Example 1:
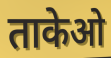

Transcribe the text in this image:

ताकेओ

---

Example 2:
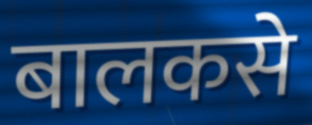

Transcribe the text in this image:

बालकसे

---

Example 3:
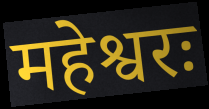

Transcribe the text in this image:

महेश्वरः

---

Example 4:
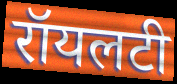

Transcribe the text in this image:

रॉयलटी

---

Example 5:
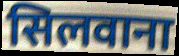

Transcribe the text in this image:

सिलवाना